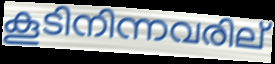
കൂടിനിന്നവരില്